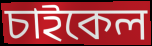
চাইকেল